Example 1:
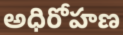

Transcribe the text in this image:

అధిరోహణ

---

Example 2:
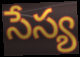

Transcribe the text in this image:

సేస్య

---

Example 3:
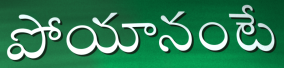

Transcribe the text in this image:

పోయానంటే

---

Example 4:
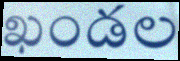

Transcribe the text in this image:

ఖండల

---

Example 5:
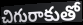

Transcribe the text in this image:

చిగురాకుతో